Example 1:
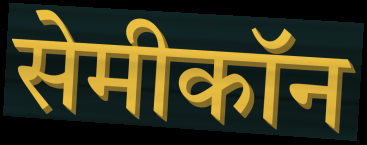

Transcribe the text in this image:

सेमीकॉन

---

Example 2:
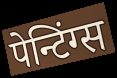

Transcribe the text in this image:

पेन्टिंग्स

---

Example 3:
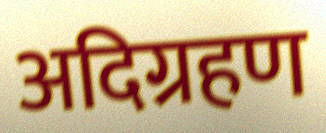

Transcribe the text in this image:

अदिग्रहण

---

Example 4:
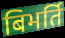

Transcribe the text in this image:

बिभर्ति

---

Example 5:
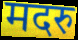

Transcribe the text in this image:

मदरु